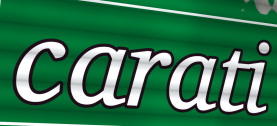
carati